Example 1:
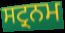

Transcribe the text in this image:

ਸਟ੍ਰਨਮ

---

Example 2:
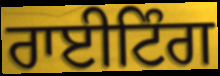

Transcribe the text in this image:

ਰਾਈਟਿੰਗ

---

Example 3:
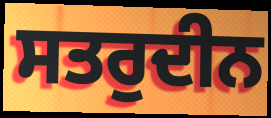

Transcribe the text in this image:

ਸਤਰੁਦੀਨ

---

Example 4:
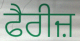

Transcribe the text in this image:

ਫੈਰੀਜ਼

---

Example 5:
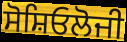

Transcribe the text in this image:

ਸੋਸ਼ਿਓਲੋਜੀ